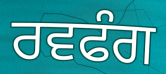
ਰਵਫੰਗ